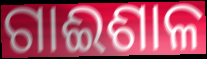
ଗାଈଶାଳ